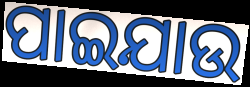
ପାଇଯାଉ